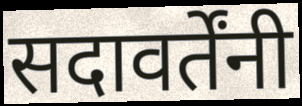
सदावर्तेंनी